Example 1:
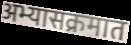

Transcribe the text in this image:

अभ्यासक्रमात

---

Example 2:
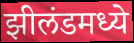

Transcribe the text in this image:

झीलंडमध्ये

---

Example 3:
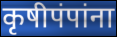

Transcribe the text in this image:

कृषीपंपांना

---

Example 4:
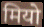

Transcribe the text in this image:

मियो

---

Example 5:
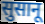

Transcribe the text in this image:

सुसानू